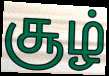
சூழ்